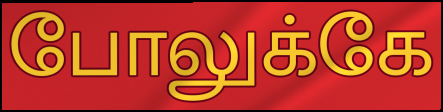
போலுக்கே